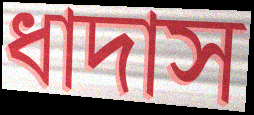
ধাদাস